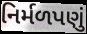
નિર્મળપણું